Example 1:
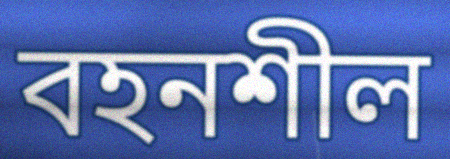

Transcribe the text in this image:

বহনশীল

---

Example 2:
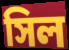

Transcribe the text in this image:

সিল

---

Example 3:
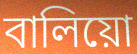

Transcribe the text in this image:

বালিয়ো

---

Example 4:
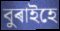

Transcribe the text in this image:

বুৰাইহে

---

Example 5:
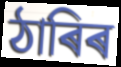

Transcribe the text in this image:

ঠাৰিৰ